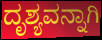
ದೃಶ್ಯವನ್ನಾಗಿ